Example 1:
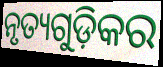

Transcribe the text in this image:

ନୃତ୍ୟଗୁଡ଼ିକର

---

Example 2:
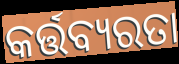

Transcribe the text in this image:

କର୍ତ୍ତବ୍ୟରତା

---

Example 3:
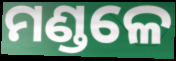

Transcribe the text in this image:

ମଣ୍ଡଳେ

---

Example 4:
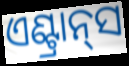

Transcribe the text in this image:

ଏଣ୍ଟ୍ରାନ୍‌ସ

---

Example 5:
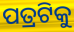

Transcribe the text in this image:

ପତ୍ରଟିକୁ